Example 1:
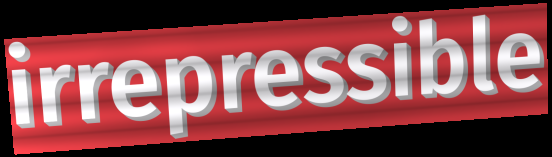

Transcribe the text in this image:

irrepressible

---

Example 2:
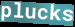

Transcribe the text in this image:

plucks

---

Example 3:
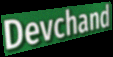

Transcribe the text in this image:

Devchand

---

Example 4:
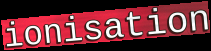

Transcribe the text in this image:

ionisation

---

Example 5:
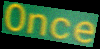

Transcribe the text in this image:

Once